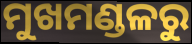
ମୁଖମଣ୍ଡଳରୁ